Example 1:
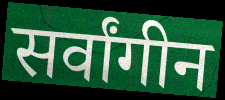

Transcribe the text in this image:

सर्वांगीन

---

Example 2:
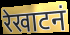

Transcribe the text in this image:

रेखाटनं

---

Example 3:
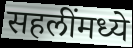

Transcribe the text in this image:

सहलींमध्ये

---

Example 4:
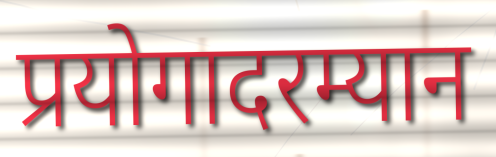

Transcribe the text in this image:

प्रयोगादरम्यान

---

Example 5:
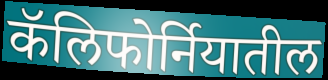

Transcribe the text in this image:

कॅलिफोर्नियातील